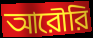
আরৌরি